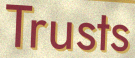
Trusts